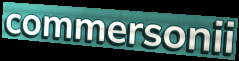
commersonii